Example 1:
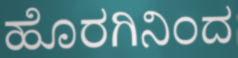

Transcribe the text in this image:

ಹೊರಗಿನಿಂದ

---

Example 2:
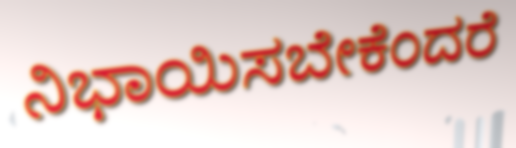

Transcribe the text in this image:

ನಿಭಾಯಿಸಬೇಕೆಂದರೆ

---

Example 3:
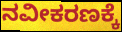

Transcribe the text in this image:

ನವೀಕರಣಕ್ಕೆ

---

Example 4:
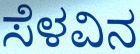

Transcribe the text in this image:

ಸೆಳವಿನ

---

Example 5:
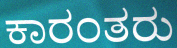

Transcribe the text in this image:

ಕಾರಂತರು